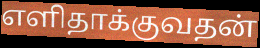
எளிதாக்குவதன்